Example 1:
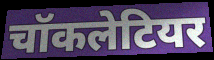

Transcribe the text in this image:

चॉकलेटियर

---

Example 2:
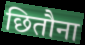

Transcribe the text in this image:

छितौना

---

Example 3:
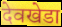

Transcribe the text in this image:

देवखेडा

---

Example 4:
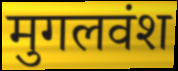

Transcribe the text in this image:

मुगलवंश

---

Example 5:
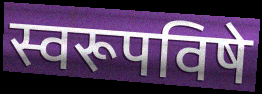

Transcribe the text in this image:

स्वरूपविषे